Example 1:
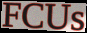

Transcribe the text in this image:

FCUs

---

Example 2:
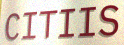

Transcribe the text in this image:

CITIIS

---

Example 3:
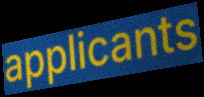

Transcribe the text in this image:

applicants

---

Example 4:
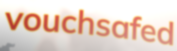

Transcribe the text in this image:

vouchsafed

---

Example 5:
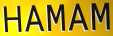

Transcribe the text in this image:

HAMAM